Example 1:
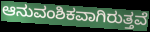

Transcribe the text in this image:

ಆನುವಂಶಿಕವಾಗಿರುತ್ತವೆ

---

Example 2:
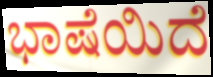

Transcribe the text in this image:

ಭಾಷೆಯಿದೆ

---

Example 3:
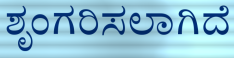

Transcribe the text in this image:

ಶೃಂಗರಿಸಲಾಗಿದೆ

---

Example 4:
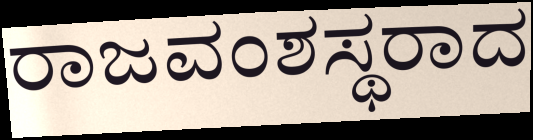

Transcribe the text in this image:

ರಾಜವಂಶಸ್ಥರಾದ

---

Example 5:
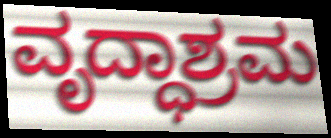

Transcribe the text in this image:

ವೃದ್ಧಾಶ್ರಮ